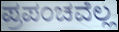
ಪ್ರಪಂಚವೆಲ್ಲ